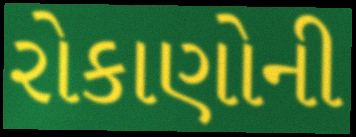
રોકાણોની